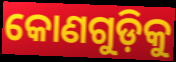
କୋଣଗୁଡ଼ିକୁ